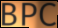
BPC